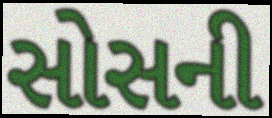
સોસની